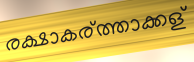
രക്ഷാകര്ത്താക്കള്